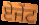
ਏਜੇਂਟ